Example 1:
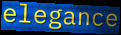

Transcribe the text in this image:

elegance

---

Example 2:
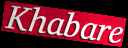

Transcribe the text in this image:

Khabare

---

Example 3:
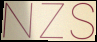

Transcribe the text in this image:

NZS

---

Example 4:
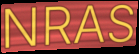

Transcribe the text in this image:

NRAS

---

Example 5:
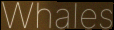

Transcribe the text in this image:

Whales